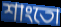
শাংতো